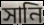
সানি